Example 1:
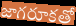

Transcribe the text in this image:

జాగరూకతో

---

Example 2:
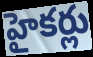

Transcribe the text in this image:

హైకర్లు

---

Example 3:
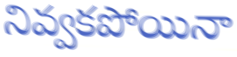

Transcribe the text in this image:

నివ్వకపోయినా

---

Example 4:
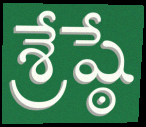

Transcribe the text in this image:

శ్రేష్ఠే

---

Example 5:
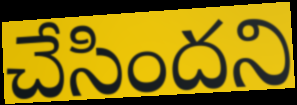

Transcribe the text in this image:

చేసిందని